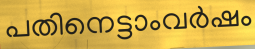
പതിനെട്ടാംവർഷം